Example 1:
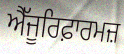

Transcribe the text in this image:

ਐੱਜੂਰਿਫ਼ਾਰਮਜ਼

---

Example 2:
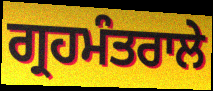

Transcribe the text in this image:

ਗ੍ਰਹਮੰਤਰਾਲੇ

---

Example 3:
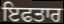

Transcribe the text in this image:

ਇਫਤਾਰ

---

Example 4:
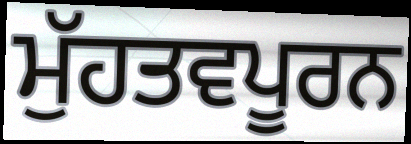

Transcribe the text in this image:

ਮੁੱਹਤਵਪੂਰਨ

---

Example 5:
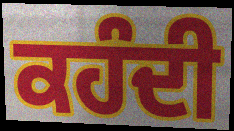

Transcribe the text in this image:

ਕਹੰਦੀ